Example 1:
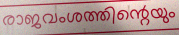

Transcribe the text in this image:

രാജവംശത്തിന്റെയും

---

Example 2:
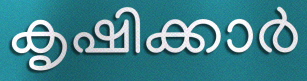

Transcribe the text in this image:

കൃഷിക്കാർ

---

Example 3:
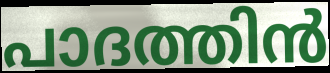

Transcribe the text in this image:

പാദത്തിൻ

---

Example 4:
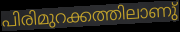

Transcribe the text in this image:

പിരിമുറക്കത്തിലാണു്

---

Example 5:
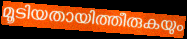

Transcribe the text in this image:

മൂടിയതായിത്തീരുകയും